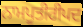
ਨਾਮਪੂਤੀਰੀਪਦ